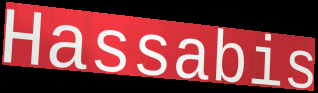
Hassabis